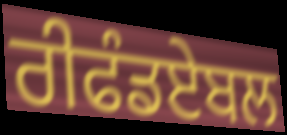
ਰੀਫੰਡਏਬਲ